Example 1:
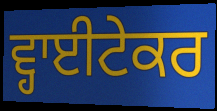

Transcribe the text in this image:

ਵ੍ਹਾਈਟੇਕਰ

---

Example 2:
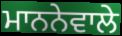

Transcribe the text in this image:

ਮਾਨਨੇਵਾਲੇ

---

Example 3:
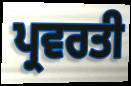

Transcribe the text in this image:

ਪ੍ਰਵਰਤੀ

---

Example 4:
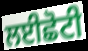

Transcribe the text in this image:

ਲਈਛੋਟੀ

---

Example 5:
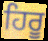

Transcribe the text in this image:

ਹਿਰੂ